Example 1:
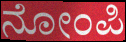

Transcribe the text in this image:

ನೋಂಪಿ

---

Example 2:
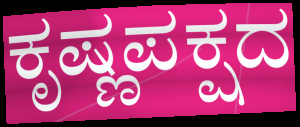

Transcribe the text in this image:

ಕೃಷ್ಣಪಕ್ಷದ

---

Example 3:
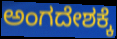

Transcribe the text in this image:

ಅಂಗದೇಶಕ್ಕೆ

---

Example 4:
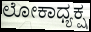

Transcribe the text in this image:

ಲೋಕಾಧ್ಯಕ್ಷ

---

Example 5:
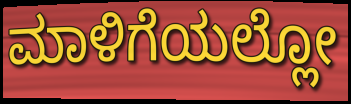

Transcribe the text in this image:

ಮಾಳಿಗೆಯಲ್ಲೋ